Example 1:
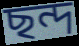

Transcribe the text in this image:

ছন্দ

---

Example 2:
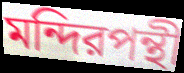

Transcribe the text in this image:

মন্দিরপন্থী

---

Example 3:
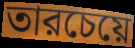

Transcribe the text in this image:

তারচেয়ে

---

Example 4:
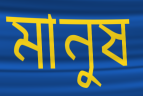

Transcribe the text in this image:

মানুষ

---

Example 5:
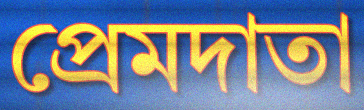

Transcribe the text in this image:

প্রেমদাতা